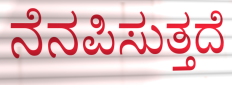
ನೆನಪಿಸುತ್ತದೆ